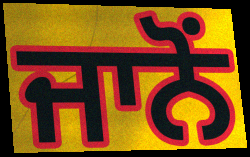
ਜਾਨੋਂ